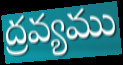
ద్రవ్యము